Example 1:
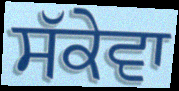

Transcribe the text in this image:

ਸੱਕੇਵਾ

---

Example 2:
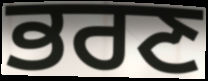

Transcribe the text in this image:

ਭਰਣ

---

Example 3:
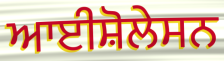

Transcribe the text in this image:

ਆਈਸ਼ੋਲੇਸਨ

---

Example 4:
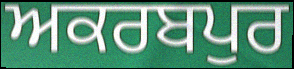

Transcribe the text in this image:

ਅਕਰਬਪੁਰ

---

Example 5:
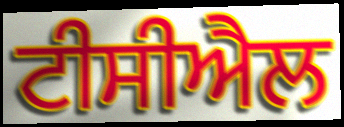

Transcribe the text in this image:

ਟੀਸੀਐਲ